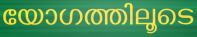
യോഗത്തിലൂടെ